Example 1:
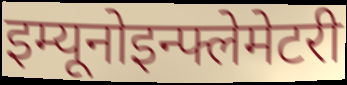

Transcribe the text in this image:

इम्यूनोइन्फ्लेमेटरी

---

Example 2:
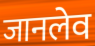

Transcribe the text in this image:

जानलेव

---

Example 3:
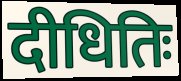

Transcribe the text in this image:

दीधितिः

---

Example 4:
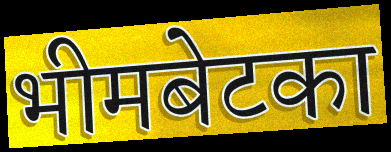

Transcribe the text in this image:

भीमबेटका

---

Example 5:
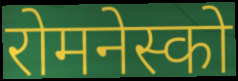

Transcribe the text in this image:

रोमनेस्को